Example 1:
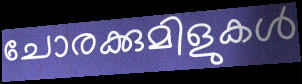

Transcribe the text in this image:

ചോരക്കുമിളുകൾ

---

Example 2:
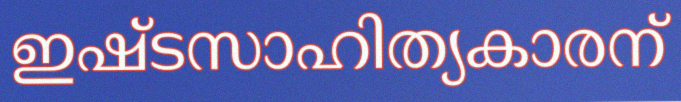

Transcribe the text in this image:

ഇഷ്ടസാഹിത്യകാരന്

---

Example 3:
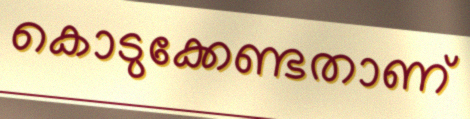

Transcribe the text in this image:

കൊടുക്കേണ്ടതാണ്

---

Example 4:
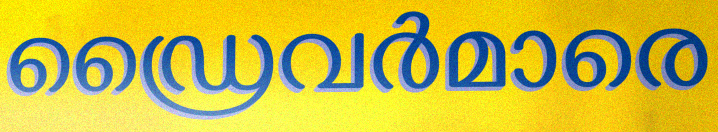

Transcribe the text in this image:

ഡ്രൈവർമാരെ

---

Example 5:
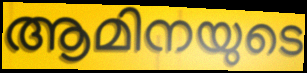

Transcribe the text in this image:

ആമിനയുടെ